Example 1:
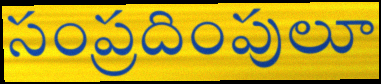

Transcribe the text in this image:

సంప్రదింపులూ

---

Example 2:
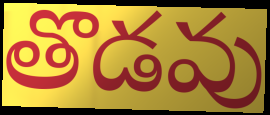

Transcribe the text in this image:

తొడవు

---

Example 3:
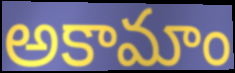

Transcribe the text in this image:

అకామాం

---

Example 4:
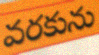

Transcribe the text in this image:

వరకును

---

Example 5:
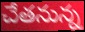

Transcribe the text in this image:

చేతనున్న